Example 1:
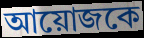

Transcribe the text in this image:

আয়োজকে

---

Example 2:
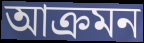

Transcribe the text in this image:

আক্ৰমন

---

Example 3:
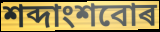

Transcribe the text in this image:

শব্দাংশবোৰ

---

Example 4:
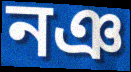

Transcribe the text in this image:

নঞ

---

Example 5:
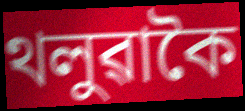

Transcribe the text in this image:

থলুৱাকৈ